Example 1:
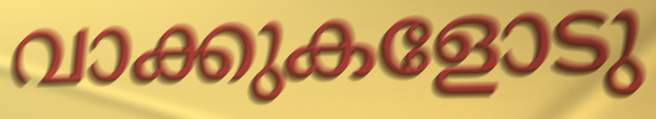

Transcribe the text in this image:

വാക്കുകളോടു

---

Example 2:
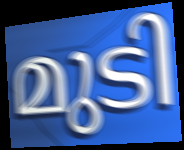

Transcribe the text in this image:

മുടി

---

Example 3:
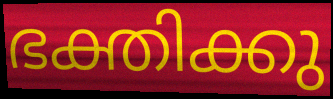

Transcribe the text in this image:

ഭക്തിക്കു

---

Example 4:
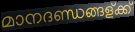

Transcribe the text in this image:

മാനദണ്ഡങ്ങള്ക്ക്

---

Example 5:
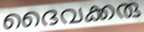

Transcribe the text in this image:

ദൈവക്കരു